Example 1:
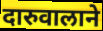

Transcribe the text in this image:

दारुवालाने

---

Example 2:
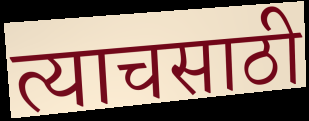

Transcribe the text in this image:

त्याचसाठी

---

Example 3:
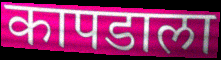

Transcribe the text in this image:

कापडाला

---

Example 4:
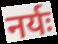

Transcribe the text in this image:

नर्यः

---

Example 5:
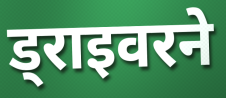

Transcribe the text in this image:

ड्राइवरने